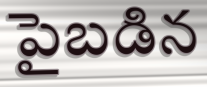
పైబడిన